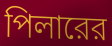
পিলারের